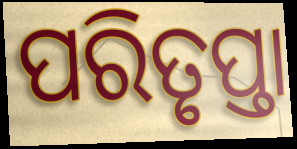
ପରିତୃପ୍ତା